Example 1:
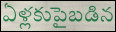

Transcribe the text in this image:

ఏళ్లకుపైబడిన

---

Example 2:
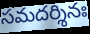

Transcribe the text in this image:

సమదర్శినః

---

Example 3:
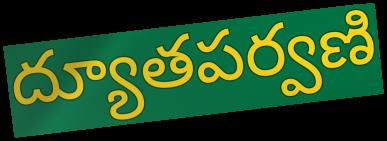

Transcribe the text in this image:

ద్యూతపర్వణి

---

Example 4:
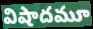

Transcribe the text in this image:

విషాదమూ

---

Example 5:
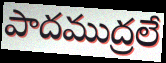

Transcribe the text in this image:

పాదముద్రలే